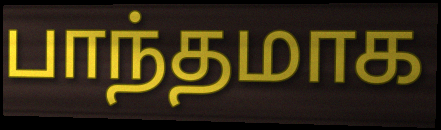
பாந்தமாக